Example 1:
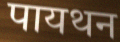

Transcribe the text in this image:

पायथन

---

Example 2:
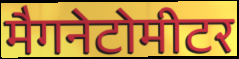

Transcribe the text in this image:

मैगनेटोमीटर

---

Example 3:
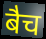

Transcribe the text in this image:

बैच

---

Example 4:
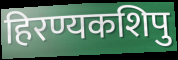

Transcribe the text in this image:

हिरण्यकशिपु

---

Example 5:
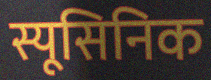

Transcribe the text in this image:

स्यूसिनिक